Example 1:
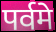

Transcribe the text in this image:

पर्वमे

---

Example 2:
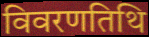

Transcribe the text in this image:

विवरणतिथि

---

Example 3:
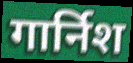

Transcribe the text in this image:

गार्निश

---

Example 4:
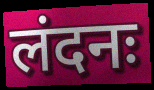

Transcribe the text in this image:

लंदनः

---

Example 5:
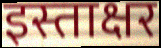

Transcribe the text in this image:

इस्ताक्षर